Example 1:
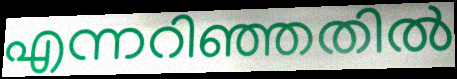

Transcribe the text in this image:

എന്നറിഞ്ഞതിൽ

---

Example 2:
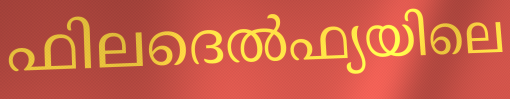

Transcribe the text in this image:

ഫിലദെൽഫ്യയിലെ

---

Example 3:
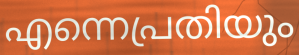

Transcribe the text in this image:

എന്നെപ്രതിയും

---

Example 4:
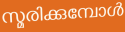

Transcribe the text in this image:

സ്മരിക്കുമ്പോൾ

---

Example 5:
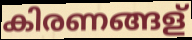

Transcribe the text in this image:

കിരണങ്ങള്